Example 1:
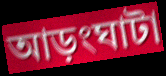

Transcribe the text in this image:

আড়ংঘাটা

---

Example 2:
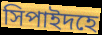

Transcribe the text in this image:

সিপাইদহে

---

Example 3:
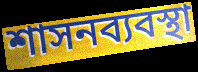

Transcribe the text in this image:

শাসনব্যবস্থা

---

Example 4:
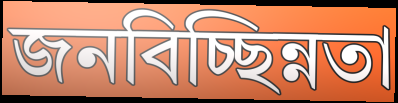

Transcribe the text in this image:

জনবিচ্ছিন্নতা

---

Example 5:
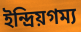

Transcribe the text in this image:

ইন্দ্রিয়গম্য